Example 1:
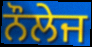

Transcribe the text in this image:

ਨੌਲੇਜ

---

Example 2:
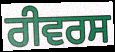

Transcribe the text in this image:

ਰੀਵਰਸ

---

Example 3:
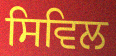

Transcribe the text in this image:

ਸਿਵਿਲ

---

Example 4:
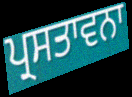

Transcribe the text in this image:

ਪ੍ਰਸਤਾਵਨਾ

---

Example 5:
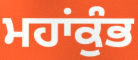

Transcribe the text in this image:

ਮਹਾਂਕੁੰਭ